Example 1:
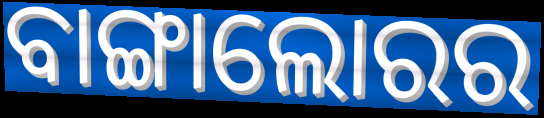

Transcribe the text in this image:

ବାଙ୍ଗାଲୋରର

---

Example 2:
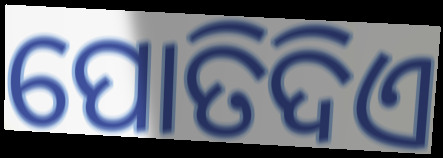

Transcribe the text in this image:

ପୋତିଦିଏ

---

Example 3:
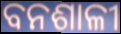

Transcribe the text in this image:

ବନଶାଳୀ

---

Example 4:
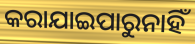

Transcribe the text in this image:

କରାଯାଇପାରୁନାହିଁ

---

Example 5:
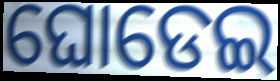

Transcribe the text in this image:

ଘୋଡେଇ